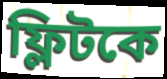
ফ্লিটকে